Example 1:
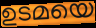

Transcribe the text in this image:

ഉടമയെ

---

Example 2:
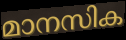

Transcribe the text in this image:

മാനസിക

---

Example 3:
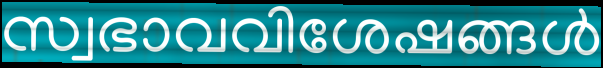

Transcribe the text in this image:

സ്വഭാവവിശേഷങ്ങൾ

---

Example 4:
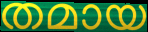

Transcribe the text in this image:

തമായ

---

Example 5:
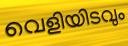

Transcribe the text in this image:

വെളിയിടവും